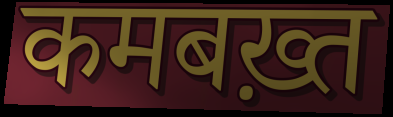
कमबख़्त